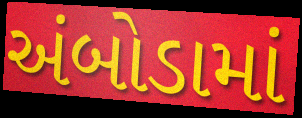
અંબોડામાં